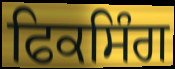
ਫਿਕਸਿੰਗ